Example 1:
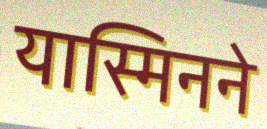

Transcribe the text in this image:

यास्मिनने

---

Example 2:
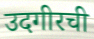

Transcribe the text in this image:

उदगीरची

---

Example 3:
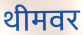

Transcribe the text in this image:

थीमवर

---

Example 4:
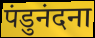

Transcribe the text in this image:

पंडुनंदना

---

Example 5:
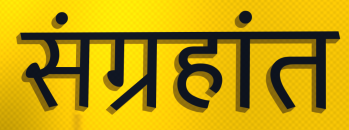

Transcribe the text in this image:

संग्रहांत